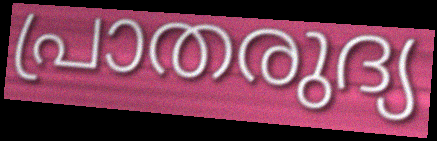
പ്രാതരുദ്യ